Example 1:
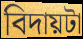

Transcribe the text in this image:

বিদায়টা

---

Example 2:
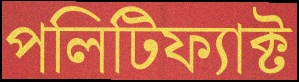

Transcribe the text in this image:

পলিটিফ্যাক্ট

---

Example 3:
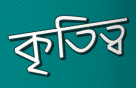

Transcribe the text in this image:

কৃতিত্ব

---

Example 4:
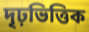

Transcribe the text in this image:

দৃঢ়ভিত্তিক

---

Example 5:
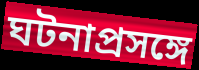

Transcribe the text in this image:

ঘটনাপ্রসঙ্গে